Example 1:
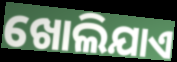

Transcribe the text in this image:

ଖୋଲିଯାଏ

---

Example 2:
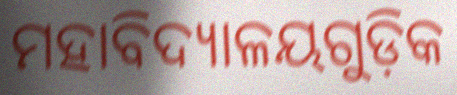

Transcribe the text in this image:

ମହାବିଦ୍ୟାଳୟଗୁଡ଼ିକ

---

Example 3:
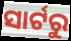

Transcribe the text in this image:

ସାର୍ଟରୁ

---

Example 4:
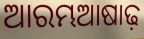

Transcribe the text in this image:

ଆରମ୍ଭଆଷାଢ଼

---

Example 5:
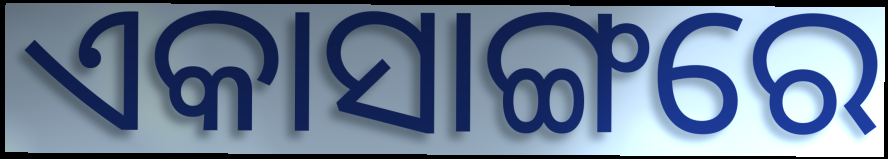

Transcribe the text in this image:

ଏକାସାଙ୍ଗରେ